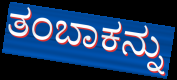
ತಂಬಾಕನ್ನು